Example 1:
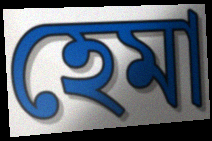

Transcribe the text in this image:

হেমা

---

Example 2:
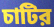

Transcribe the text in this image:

চাটির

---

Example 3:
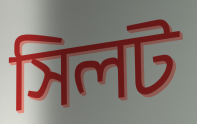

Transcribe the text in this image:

সিলট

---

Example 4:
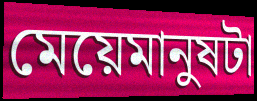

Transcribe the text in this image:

মেয়েমানুষটা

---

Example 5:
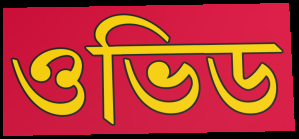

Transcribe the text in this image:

ওভিড